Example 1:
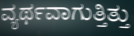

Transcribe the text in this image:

ವ್ಯರ್ಥವಾಗುತ್ತಿತ್ತು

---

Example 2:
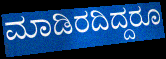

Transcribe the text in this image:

ಮಾಡಿರದಿದ್ದರೂ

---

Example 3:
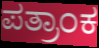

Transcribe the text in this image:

ಪತ್ರಾಂಕ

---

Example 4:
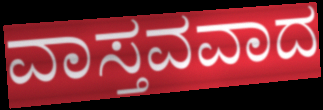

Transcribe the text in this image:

ವಾಸ್ತವವಾದ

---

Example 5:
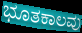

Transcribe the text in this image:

ಭೂತಕಾಲವು